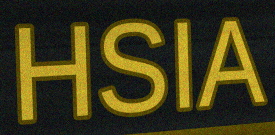
HSIA